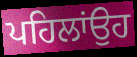
ਪਹਿਲਾਂਉਹ